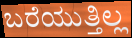
ಬರೆಯುತ್ತಿಲ್ಲ